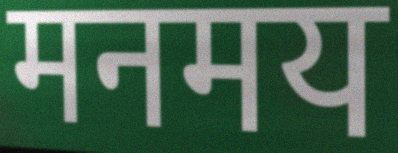
मनमय